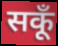
सकूँ